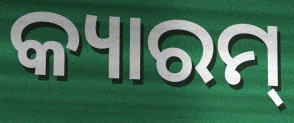
କ୍ୟାରମ୍